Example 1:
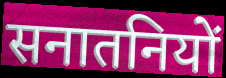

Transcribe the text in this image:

सनातनियों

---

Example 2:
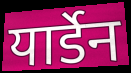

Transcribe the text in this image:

यार्डेन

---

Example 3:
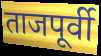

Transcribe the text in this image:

ताजपूर्वी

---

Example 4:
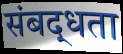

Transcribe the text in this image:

संबद्धता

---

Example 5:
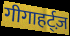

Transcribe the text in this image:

गीगाहर्ट्ज़